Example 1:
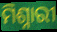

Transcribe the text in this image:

ମିଶ୍ନାରୀ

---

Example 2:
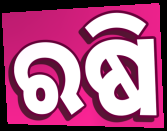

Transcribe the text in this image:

ରଷି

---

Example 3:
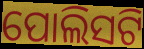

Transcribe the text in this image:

ପୋଲିସଟି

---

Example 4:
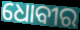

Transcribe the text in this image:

ଧୋବୀର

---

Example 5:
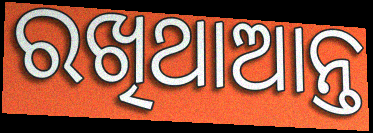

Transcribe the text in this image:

ରଖିଥାଆନ୍ତ